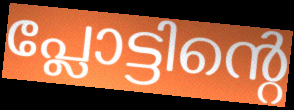
പ്ലോട്ടിന്റെ